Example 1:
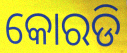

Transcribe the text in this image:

କୋରଡି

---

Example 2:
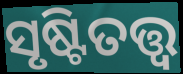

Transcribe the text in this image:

ସୃଷ୍ଟିତତ୍ତ୍ୱ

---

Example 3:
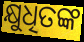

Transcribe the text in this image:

କ୍ଷୁଧିତଙ୍କ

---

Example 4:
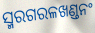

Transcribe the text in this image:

ସ୍ମରଗରଳଖଣ୍ଡନଂ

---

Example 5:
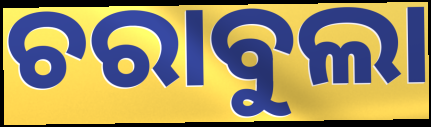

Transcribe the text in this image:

ଚରାବୁଲା